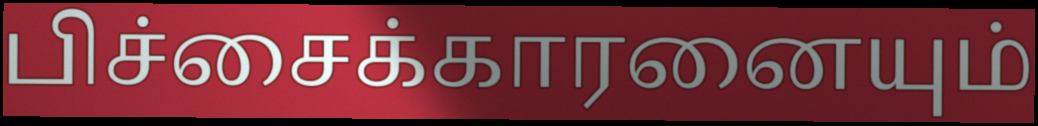
பிச்சைக்காரனையும்